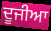
ਦੂਜੀਆ